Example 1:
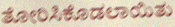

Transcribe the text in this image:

ತೋರಿಸಿಕೊಡಲಾಯಿತು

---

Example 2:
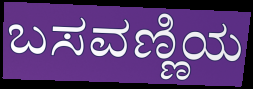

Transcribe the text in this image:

ಬಸವಣ್ಣಿಯ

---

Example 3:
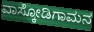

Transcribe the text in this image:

ವಾಸ್ಕೋಡಿಗಾಮನ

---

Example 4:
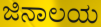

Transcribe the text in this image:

ಜಿನಾಲಯ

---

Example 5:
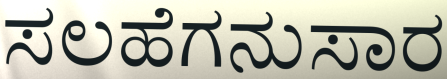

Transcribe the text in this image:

ಸಲಹೆಗನುಸಾರ